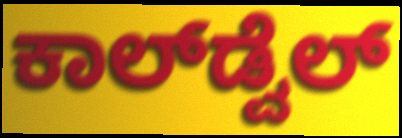
ಕಾಲ್‌ಡ್ವೆಲ್